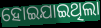
ହୋଇଯାଇଥିଲା